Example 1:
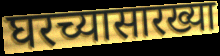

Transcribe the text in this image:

घरच्यासारख्या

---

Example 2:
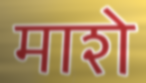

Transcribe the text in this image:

माशे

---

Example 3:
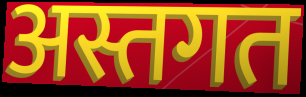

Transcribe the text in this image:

अस्तगत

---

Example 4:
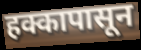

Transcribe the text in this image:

हक्कापासून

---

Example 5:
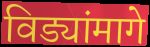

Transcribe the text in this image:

विड्यांमागे